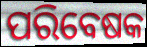
ପରିବେଷକ